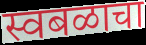
स्वबळाचा